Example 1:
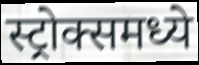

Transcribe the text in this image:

स्ट्रोक्समध्ये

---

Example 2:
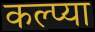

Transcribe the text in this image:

कल्प्या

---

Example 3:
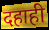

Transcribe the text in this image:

दहाही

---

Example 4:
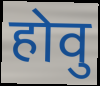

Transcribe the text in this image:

होवु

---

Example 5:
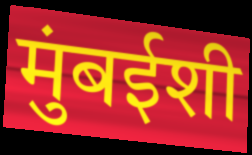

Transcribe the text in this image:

मुंबईशी